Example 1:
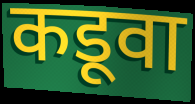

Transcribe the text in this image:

कडूवा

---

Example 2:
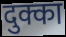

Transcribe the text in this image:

दुक्‍का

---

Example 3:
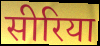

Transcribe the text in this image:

सीरिया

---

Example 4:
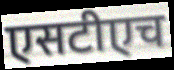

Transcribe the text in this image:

एसटीएच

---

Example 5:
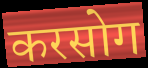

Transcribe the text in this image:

करसोग